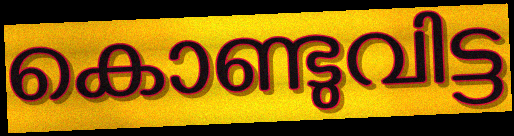
കൊണ്ടുവിട്ട